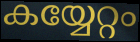
കയ്യേറ്റം